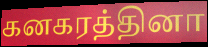
கனகரத்தினா